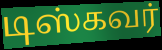
டிஸ்கவர்